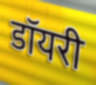
डॉयरी